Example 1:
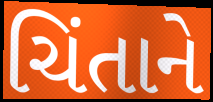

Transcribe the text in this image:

ચિંતાને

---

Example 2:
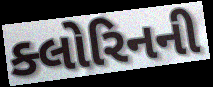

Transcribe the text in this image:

ક્લોરિનની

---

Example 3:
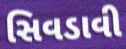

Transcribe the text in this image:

સિવડાવી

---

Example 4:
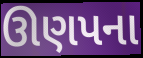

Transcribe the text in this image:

ઊણપના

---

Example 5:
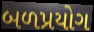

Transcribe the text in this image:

બળપ્રયોગ